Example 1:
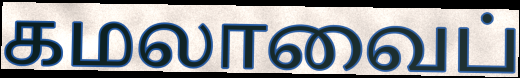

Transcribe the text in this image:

கமலாவைப்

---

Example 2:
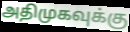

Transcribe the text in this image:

அதிமுகவுக்கு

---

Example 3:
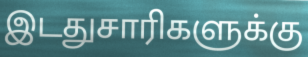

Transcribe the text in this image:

இடதுசாரிகளுக்கு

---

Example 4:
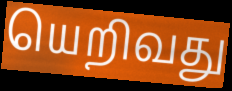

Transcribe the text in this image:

யெறிவது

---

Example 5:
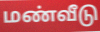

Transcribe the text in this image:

மண்வீடு